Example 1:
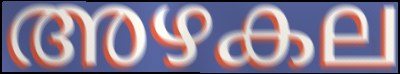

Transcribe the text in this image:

അഴകല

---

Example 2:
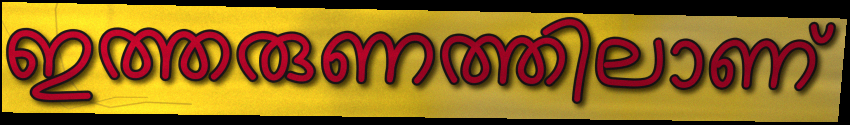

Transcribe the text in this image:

ഇത്തരുണത്തിലാണ്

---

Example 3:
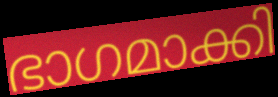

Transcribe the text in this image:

ഭാഗമാക്കി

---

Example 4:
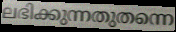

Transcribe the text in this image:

ലഭിക്കുന്നതുതന്നെ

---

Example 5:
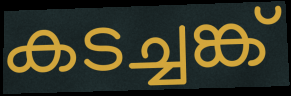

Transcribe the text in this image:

കടച്ചങ്ക്